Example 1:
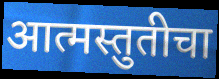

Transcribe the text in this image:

आत्मस्तुतीचा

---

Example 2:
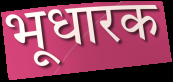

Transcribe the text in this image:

भूधारक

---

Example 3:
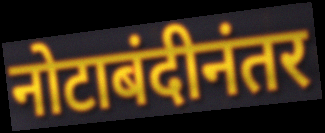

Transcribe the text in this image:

नोटाबंदीनंतर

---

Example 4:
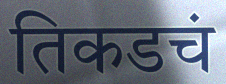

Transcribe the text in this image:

तिकडचं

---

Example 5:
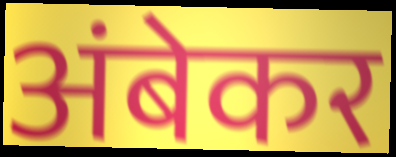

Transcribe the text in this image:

अंबेकर